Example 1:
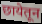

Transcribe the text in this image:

छायेतून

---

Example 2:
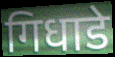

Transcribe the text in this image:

गिधाडे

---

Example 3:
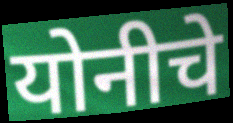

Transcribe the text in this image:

योनीचे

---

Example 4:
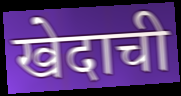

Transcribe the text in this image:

खेदाची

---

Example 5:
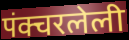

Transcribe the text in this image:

पंक्चरलेली